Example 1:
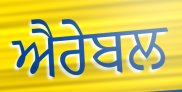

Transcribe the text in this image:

ਐਰੇਬਲ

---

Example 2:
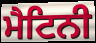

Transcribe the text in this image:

ਮੈਟਿਨੀ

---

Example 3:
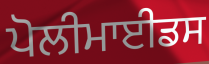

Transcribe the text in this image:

ਪੋਲੀਮਾਈਡਸ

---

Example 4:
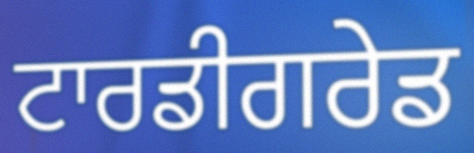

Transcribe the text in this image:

ਟਾਰਡੀਗਰੇਡ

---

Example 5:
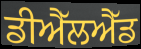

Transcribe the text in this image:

ਡੀਐੱਲਐੱਡ